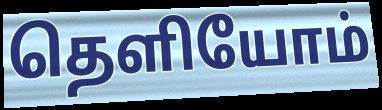
தெளியோம்